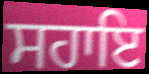
ਸਹਾਇ